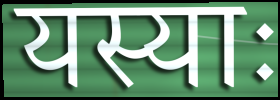
यस्याः